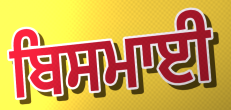
ਬਿਸਮਾਈ